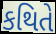
કથિતે